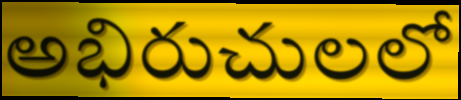
అభిరుచులలో